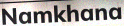
Namkhana